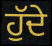
ਹੁੱਦੇ